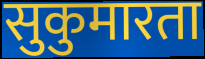
सुकुमारता